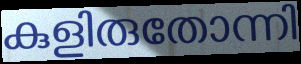
കുളിരുതോന്നി